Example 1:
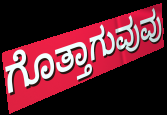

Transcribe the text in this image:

ಗೊತ್ತಾಗುವುವು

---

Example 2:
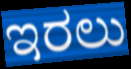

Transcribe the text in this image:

ಇರಲು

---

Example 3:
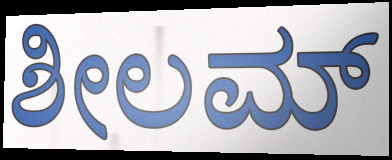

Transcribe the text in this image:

ಶೀಲಮ್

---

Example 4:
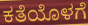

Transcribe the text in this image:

ಕತೆಯೊಳಗೆ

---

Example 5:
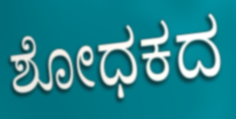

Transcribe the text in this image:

ಶೋಧಕದ